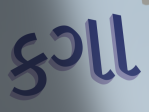
કગા